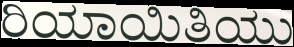
ರಿಯಾಯಿತಿಯು